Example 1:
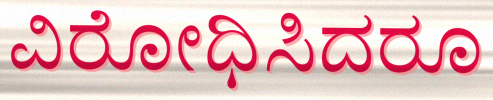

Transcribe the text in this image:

ವಿರೋಧಿಸಿದರೂ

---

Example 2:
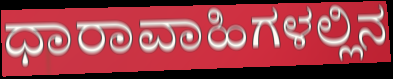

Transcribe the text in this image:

ಧಾರಾವಾಹಿಗಳಲ್ಲಿನ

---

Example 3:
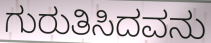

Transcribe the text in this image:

ಗುರುತಿಸಿದವನು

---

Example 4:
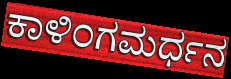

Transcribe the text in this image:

ಕಾಳಿಂಗಮರ್ಧನ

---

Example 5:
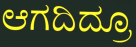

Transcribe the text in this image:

ಆಗದಿದ್ರೂ